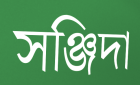
সঞ্জিদা